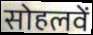
सोहलवें